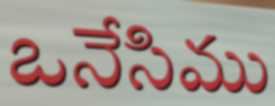
ఒనేసిము